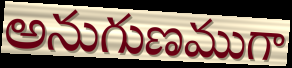
అనుగుణముగా